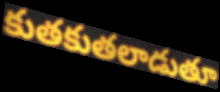
కుతకుతలాడుతూ